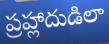
ప్రహ్లాదుడిలా